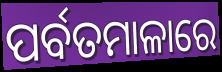
ପର୍ବତମାଳାରେ